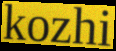
kozhi